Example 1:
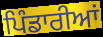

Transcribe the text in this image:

ਪਿੰਡਾਰੀਆਂ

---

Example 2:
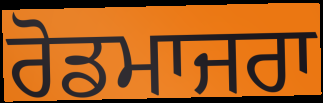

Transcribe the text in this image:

ਰੋਡਮਾਜਰਾ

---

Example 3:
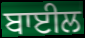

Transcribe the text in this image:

ਬਾਈਲ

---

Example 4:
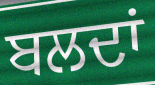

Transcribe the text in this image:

ਬਲਦਾਂ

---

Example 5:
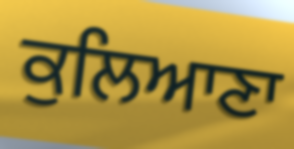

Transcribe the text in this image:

ਕੁਲਿਆਣਾ